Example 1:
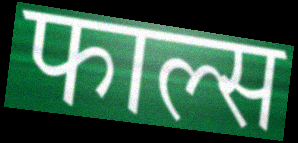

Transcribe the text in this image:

फाल्स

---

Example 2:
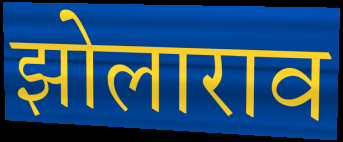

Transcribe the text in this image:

झोलाराव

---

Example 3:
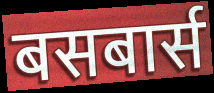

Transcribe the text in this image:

बसबार्स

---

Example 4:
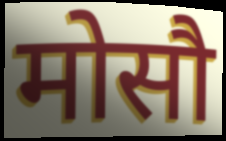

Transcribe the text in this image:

मोसौ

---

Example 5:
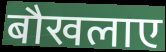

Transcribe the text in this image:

बौखलाए